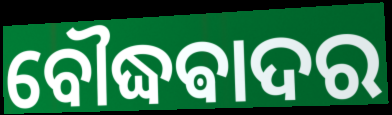
ବୌଦ୍ଧଵାଦର